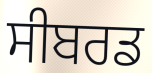
ਸੀਬਰਡ